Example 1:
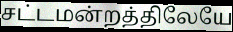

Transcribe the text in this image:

சட்டமன்றத்திலேயே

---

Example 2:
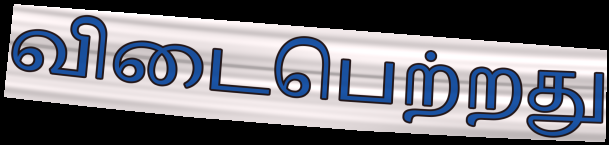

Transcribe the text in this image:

விடைபெற்றது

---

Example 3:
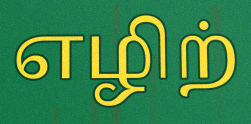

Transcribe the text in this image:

எழிற்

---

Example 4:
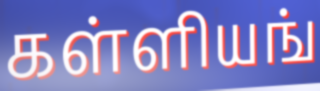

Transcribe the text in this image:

கள்ளியங்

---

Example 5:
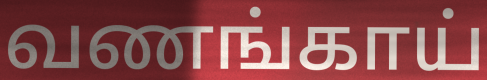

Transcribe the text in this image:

வணங்காய்